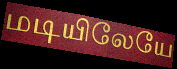
மடியிலேயே